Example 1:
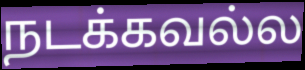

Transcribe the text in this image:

நடக்கவல்ல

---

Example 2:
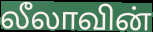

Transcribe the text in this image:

லீலாவின்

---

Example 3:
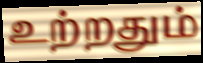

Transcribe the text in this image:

உற்றதும்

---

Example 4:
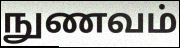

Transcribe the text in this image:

நுணவம்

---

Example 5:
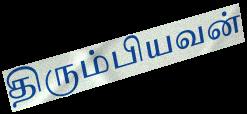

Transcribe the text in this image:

திரும்பியவன்